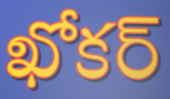
ఖోకర్